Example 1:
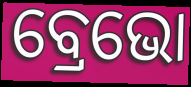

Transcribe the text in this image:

ବ୍ରେଭୋ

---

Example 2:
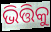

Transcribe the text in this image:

ଭିତ୍ତିକୁ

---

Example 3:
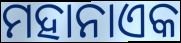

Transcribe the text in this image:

ମହାନାଏକ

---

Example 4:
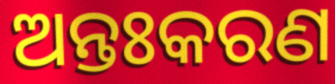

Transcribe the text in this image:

ଅନ୍ତଃକରଣ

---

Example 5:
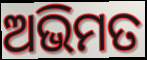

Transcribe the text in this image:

ଅଭିମତ